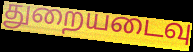
துறையடைவு